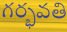
గర్భవతి